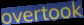
overtook